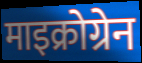
माइक्रोग्रेन